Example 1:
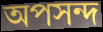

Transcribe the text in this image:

অপসন্দ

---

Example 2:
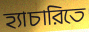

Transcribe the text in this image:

হ্যাচারিতে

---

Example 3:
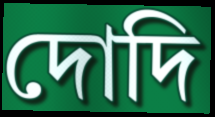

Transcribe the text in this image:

দোদি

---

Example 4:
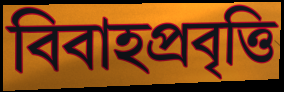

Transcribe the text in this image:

বিবাহপ্রবৃত্তি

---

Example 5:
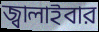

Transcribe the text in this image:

জ্বালাইবার